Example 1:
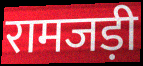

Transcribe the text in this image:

रामजड़ी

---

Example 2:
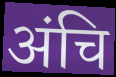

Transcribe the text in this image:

अंचि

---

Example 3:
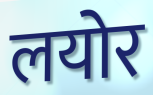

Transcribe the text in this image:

लयोर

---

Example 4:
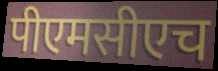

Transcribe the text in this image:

पीएमसीएच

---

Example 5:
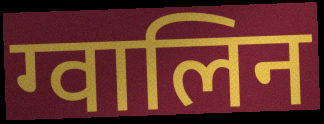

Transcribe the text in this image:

ग्वालिन